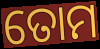
ତୋମ